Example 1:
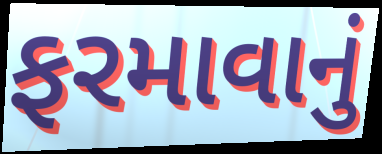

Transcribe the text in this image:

ફરમાવાનું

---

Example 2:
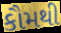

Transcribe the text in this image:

કૌમથી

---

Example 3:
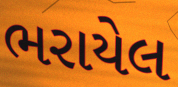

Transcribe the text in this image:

ભરાયેલ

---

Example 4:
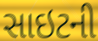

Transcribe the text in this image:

સાઇટની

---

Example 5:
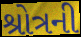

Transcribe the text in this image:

શ્રોત્રની